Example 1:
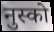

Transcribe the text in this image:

नुस्को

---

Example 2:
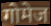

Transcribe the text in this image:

गोमेज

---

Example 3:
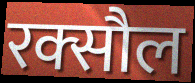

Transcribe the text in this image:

रक्‍सौल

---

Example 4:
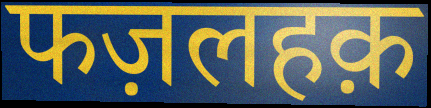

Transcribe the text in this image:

फज़लहक़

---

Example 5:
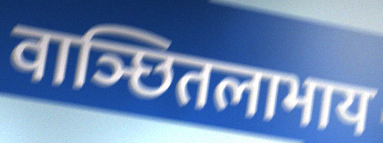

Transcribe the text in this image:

वाञ्छितलाभाय